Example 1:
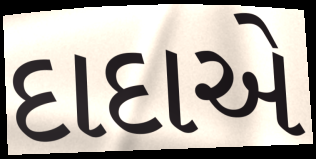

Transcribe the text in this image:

દાદાએ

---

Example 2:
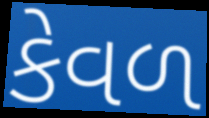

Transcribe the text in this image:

કેવળ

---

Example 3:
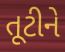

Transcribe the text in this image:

તૂટીને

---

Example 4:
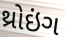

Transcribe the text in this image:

થ્રોઇંગ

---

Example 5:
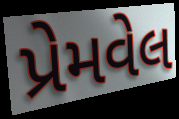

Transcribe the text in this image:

પ્રેમવેલ